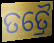
ତତ୍ରୈ